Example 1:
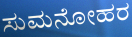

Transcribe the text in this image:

ಸುಮನೋಹರ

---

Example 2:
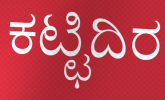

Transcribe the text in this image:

ಕಟ್ಟಿದಿರ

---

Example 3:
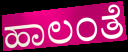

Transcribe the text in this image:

ಹಾಲಂತೆ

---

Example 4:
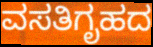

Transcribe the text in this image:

ವಸತಿಗೃಹದ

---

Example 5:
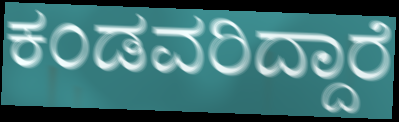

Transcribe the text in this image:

ಕಂಡವರಿದ್ದಾರೆ